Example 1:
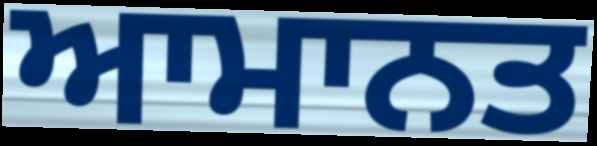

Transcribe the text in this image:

ਆਮਾਨਤ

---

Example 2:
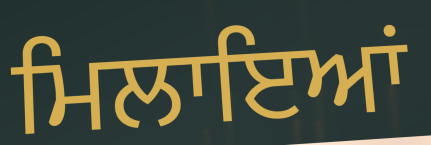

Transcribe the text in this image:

ਮਿਲਾਇਆਂ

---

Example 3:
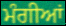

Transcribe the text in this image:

ਮੰਗੀਆਂ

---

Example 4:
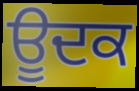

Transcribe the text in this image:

ਊਦਕ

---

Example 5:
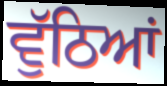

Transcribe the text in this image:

ਵੁੱਠਿਆਂ